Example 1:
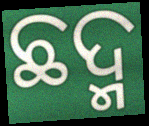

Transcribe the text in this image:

ଛଦ୍ମ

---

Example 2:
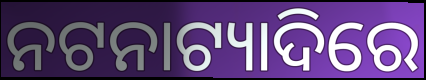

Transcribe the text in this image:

ନଟନାଟ୍ୟାଦିରେ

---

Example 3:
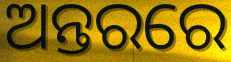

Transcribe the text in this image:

ଅନ୍ତରରେ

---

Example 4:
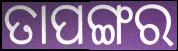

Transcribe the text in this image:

ତାପଙ୍ଗର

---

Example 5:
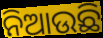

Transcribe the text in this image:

ନିଆଉଛି